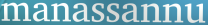
manassannu